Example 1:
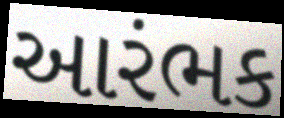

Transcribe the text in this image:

આરંભક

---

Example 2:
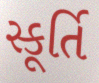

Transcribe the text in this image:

સ્કૂર્તિ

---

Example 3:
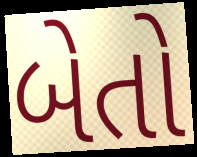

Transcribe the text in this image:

બેતો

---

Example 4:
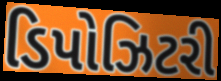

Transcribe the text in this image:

ડિપોઝિટરી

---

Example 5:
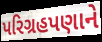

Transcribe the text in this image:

પરિગ્રહપણાને